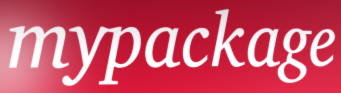
mypackage